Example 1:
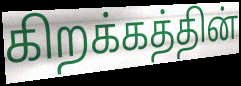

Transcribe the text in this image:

கிறக்கத்தின்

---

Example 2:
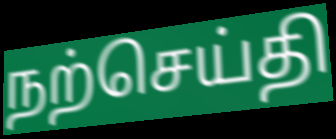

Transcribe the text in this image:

நற்செய்தி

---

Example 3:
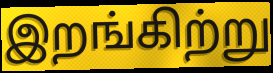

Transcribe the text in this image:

இறங்கிற்று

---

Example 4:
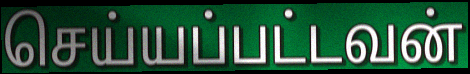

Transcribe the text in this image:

செய்யப்பட்டவன்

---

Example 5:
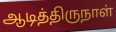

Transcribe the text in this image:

ஆடித்திருநாள்